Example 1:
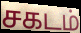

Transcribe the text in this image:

சகடம்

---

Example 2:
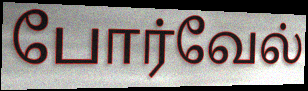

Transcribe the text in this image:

போர்வேல்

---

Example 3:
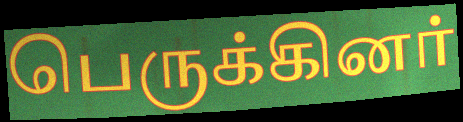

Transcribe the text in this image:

பெருக்கினர்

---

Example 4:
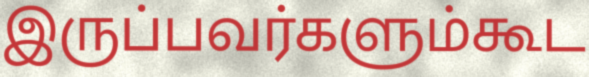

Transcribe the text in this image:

இருப்பவர்களும்கூட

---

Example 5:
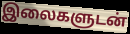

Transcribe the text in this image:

இலைகளுடன்